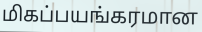
மிகப்பயங்கரமான